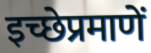
इच्छेप्रमाणें